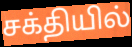
சக்தியில்